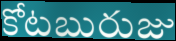
కోటబురుజు